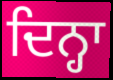
ਦਿਨ੍ਹਾ